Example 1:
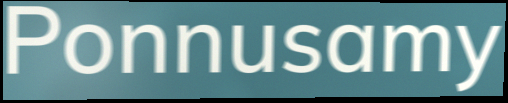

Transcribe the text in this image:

Ponnusamy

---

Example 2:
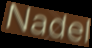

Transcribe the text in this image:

Nadel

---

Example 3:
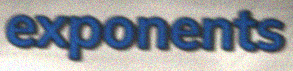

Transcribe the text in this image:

exponents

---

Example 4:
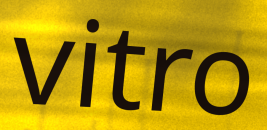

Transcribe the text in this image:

vitro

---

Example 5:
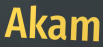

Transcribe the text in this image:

Akam